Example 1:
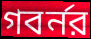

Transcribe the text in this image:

গবর্নর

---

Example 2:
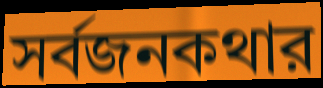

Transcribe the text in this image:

সর্বজনকথার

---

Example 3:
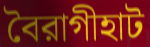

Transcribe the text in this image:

বৈরাগীহাট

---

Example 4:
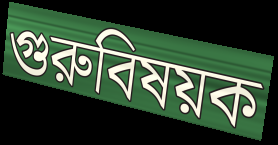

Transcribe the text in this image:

গুরুবিষয়ক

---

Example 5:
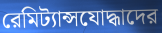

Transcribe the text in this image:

রেমিট্যান্সযোদ্ধাদের